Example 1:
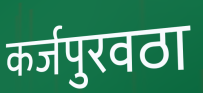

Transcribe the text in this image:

कर्जपुरवठा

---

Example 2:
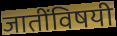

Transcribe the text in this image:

जातींविषयी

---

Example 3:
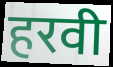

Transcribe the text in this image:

हरवी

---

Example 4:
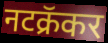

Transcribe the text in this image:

नटक्रॅकर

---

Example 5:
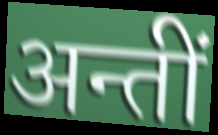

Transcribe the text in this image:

अन्तीं